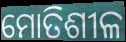
ମୋତିଶୀଳ